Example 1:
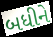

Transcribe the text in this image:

બધીને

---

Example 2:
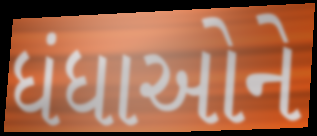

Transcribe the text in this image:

ધંધાઓને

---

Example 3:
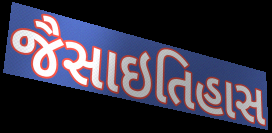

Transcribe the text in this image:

જૈસાઇતિહાસ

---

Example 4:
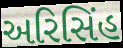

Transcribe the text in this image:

અરિસિંહ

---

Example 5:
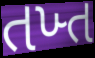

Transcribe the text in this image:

તખ્ત